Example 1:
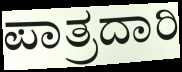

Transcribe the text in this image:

ಪಾತ್ರದಾರಿ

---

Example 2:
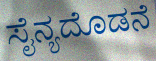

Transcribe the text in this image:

ಸೈನ್ಯದೊಡನೆ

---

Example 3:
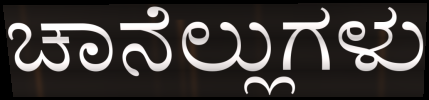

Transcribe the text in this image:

ಚಾನೆಲ್ಲುಗಳು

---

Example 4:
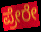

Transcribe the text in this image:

ಪ್ರೇರೇ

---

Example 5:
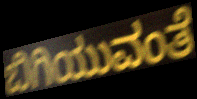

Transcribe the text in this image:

ಬಿಗಿಯುವಂತೆ